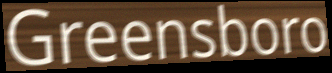
Greensboro